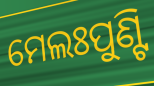
ମେଲଃପୁଣ୍ଟି